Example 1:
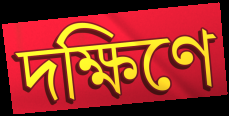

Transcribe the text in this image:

দক্ষিণে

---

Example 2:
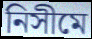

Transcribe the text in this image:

নিসীমে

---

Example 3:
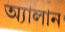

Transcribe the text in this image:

অ্যালান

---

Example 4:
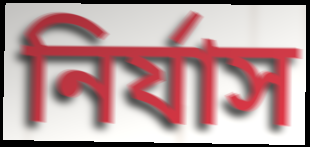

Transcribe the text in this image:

নির্যাস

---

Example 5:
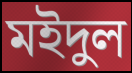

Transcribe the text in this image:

মইদুল